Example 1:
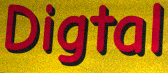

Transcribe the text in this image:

Digtal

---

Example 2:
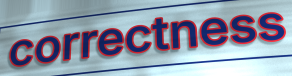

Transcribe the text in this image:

correctness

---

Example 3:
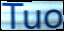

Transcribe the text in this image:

Tuo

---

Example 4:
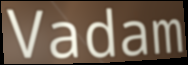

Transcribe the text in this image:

Vadam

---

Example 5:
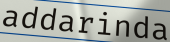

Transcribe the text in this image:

addarinda